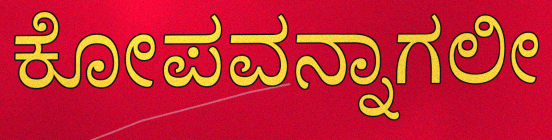
ಕೋಪವನ್ನಾಗಲೀ